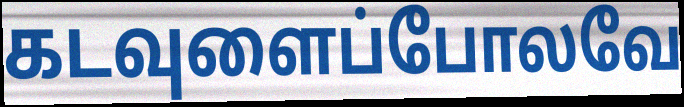
கடவுளைப்போலவே